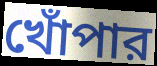
খোঁপার